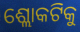
ଶ୍ଲୋକଟିକୁ